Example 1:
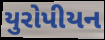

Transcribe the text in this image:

યુરોપીયન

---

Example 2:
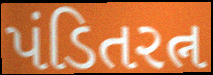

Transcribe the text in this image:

પંડિતરત્ન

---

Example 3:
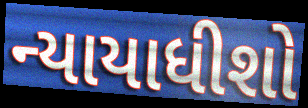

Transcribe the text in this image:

ન્યાયાધીશો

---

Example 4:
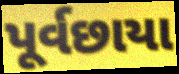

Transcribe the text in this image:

પૂર્વછાયા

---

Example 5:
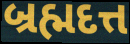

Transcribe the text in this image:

બ્રહ્મદત્ત